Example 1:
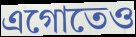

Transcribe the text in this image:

এগোতেও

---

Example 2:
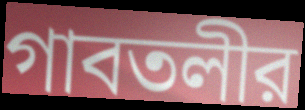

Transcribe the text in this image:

গাবতলীর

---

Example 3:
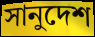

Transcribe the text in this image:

সানুদেশ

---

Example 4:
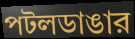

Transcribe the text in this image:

পটলডাঙার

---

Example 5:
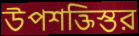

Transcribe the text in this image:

উপশক্তিস্তর